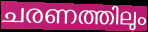
ചരണത്തിലും